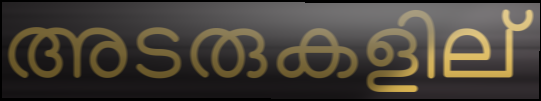
അടരുകളില്